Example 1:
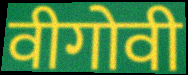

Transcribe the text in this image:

वीगोवी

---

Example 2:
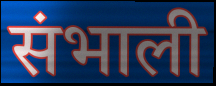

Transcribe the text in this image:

संभाली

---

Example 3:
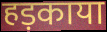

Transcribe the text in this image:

हड़काया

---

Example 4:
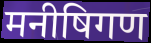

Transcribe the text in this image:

मनीषिगण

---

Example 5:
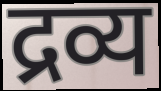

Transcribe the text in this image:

द्रव्य